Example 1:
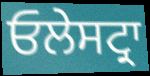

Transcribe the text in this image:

ਓਲੇਸਟ੍ਰਾ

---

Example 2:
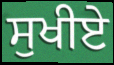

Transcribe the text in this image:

ਸੁਖੀਏ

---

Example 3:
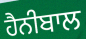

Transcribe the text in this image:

ਹੈਨੀਬਾਲ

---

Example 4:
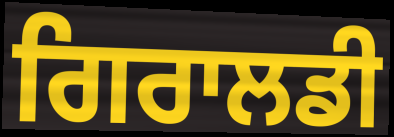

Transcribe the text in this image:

ਗਿਰਾਲਡੀ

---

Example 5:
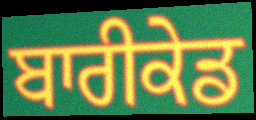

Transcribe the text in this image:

ਬਾਰੀਕੇਡ